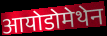
आयोडोमेथेन